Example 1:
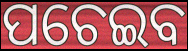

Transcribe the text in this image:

ପଚେଇବ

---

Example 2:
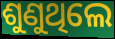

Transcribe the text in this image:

ଶୁଣୁଥିଲେ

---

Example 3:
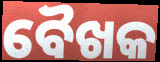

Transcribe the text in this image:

ବୈଖକ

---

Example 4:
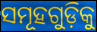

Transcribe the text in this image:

ସମୂହଗୁଡ଼ିକୁ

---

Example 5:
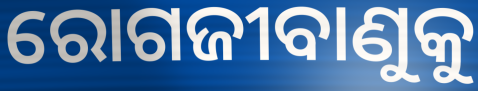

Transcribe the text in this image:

ରୋଗଜୀବାଣୁକୁ